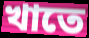
খাতে